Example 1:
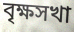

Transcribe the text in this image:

বৃক্ষসখা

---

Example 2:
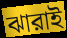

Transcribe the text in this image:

ঝারাই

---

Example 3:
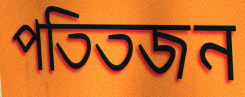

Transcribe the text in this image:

পতিতজন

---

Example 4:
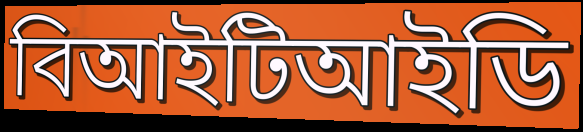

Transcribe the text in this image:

বিআইটিআইডি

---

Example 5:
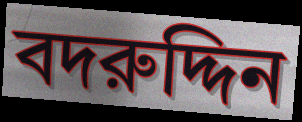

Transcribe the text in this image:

বদরুদ্দিন